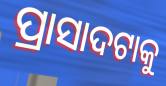
ପ୍ରାସାଦଟାକୁ